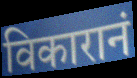
विकारानं